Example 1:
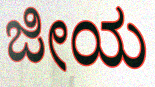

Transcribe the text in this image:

ಜೀಯ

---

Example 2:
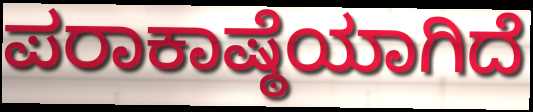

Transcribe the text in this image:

ಪರಾಕಾಷ್ಠೆಯಾಗಿದೆ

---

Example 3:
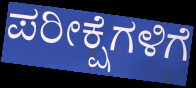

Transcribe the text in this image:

ಪರೀಕ್ಷೆಗಳಿಗೆ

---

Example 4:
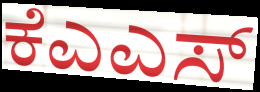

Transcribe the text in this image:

ಕೆಎಎಸ್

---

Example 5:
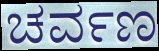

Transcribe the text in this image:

ಚರ್ವಣ